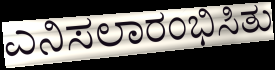
ಎನಿಸಲಾರಂಭಿಸಿತು